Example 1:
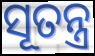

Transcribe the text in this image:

ସୂତନ୍ତ୍ର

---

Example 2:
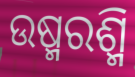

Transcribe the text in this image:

ଉଷ୍ମରଶ୍ମି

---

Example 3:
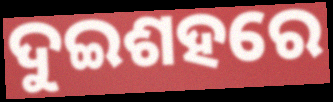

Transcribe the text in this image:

ଦୁଇଶହରେ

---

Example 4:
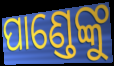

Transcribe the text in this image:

ପାଣ୍ଡେଙ୍କୁ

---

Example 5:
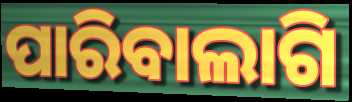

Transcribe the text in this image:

ପାରିବାଲାଗି